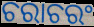
ଚରାଚରଂ